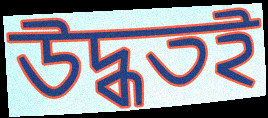
উদ্ধতই